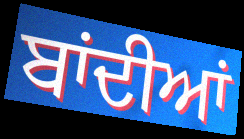
ਬਾਂਦੀਆਂ